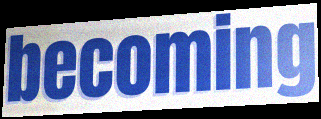
becoming